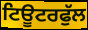
ਟਿਊਟਰਫੁੱਲ